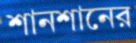
শানশানের